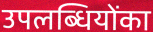
उपलब्धियोंका